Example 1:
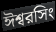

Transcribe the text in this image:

ঈশ্বরসিং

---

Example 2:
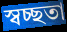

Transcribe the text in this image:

স্বচ্ছতা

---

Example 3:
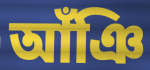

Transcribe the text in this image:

আঁঞি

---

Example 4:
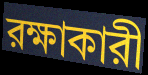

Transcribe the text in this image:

রক্ষাকারী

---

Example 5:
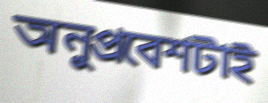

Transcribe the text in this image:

অনুপ্রবেশটাই